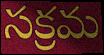
సక్రమ